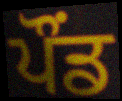
ਪੌਂਡ